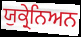
ਯੁਕ੍ਰੇਨਿਅਨ